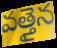
వత్తైన